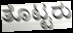
ತೊಟ್ಟರು